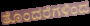
ತೊಂದರೆಗಳಿಂದ